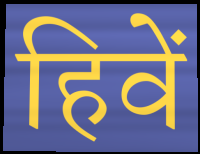
हिवें